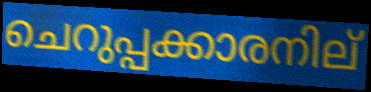
ചെറുപ്പക്കാരനില്